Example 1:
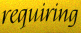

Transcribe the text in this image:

requiring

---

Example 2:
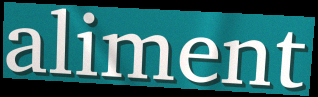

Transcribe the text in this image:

aliment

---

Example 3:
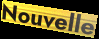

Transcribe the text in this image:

Nouvelle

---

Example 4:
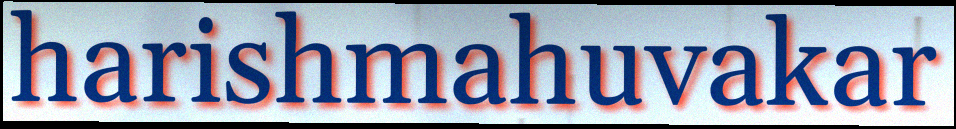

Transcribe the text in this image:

harishmahuvakar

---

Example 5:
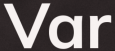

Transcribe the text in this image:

Var